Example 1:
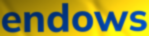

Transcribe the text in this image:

endows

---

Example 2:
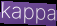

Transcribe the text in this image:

kappa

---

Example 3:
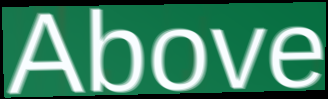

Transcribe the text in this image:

Above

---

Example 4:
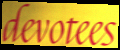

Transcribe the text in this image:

devotees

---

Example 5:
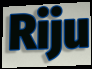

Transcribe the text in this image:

Riju